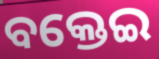
ବକ୍ତେଇ